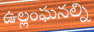
ఉల్లంఘనల్ని